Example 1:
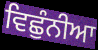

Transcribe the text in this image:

ਵਿਛੁੰਨੀਆ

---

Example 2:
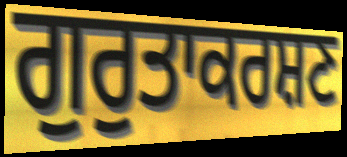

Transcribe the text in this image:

ਗੁਰੁਤਾਕਰਸ਼ਣ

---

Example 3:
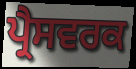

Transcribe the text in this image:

ਪ੍ਰੈਸਵਰਕ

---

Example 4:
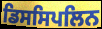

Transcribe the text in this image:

ਡਿਸਸਿਪਲਿਨ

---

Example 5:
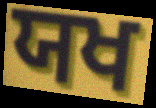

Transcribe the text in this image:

ਯਖ